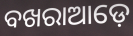
ବଖରାଆଡ଼େ